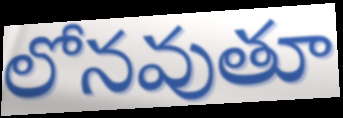
లోనవుతూ